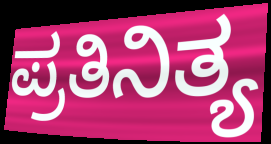
ಪ್ರತಿನಿತ್ಯ